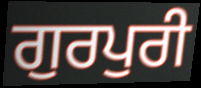
ਗੁਰਪੁਰੀ